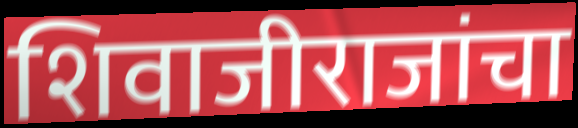
शिवाजीराजांचा